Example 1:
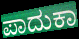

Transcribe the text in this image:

ಪಾದುಕಾ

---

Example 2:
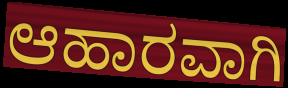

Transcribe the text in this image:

ಆಹಾರವಾಗಿ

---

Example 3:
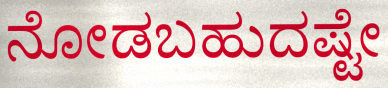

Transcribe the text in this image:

ನೋಡಬಹುದಷ್ಟೇ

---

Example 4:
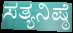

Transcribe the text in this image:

ಸತ್ಯನಿಷ್ಠೆ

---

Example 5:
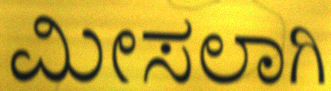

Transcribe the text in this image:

ಮೀಸಲಾಗಿ